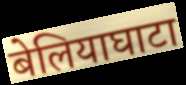
बेलियाघाटा